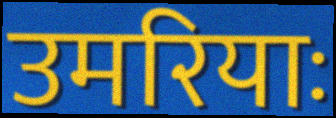
उमरियाः